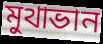
মুথাভান